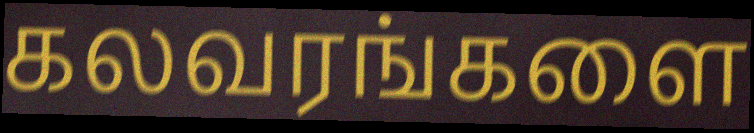
கலவரங்களை